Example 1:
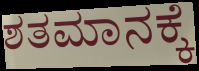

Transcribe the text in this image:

ಶತಮಾನಕ್ಕೆ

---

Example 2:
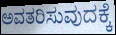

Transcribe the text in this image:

ಅವತರಿಸುವುದಕ್ಕೆ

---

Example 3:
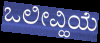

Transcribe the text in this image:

ಒಲೀವ್ಹಿಯೆ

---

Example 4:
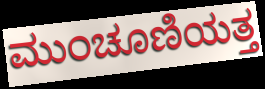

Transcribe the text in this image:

ಮುಂಚೂಣಿಯತ್ತ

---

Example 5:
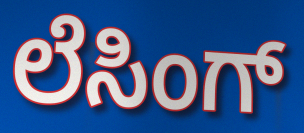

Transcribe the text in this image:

ಲೆಸಿಂಗ್